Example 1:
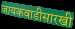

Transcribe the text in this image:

जायकवाडीसारखी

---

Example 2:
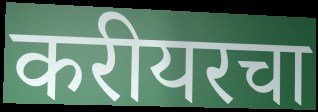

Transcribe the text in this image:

करीयरचा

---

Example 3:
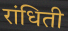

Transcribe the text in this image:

रांधिती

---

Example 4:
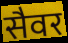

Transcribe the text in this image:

सैवर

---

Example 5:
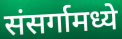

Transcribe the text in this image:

संसर्गामध्ये